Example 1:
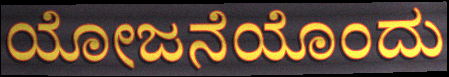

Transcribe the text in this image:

ಯೋಜನೆಯೊಂದು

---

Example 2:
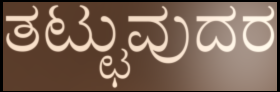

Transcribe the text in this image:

ತಟ್ಟುವುದರ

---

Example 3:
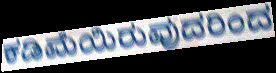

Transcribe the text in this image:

ಕಡಿಮೆಯಿರುವುದರಿಂದ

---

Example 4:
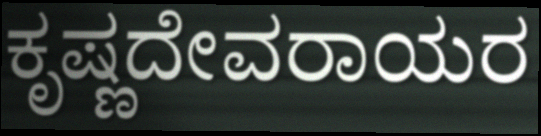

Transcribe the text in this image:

ಕೃಷ್ಣದೇವರಾಯರ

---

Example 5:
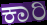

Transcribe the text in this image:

ಕಾರಿ